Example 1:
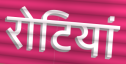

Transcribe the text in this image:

रोटियां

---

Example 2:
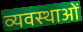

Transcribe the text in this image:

व्यवस्थाओें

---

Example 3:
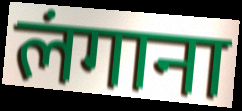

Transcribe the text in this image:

लंगाना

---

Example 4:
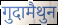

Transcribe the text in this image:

गुदामैथुन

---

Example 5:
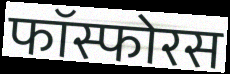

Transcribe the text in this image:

फॉस्फोरस